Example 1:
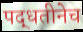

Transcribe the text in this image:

पद्धतीनेच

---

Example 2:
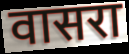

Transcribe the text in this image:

वासरा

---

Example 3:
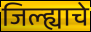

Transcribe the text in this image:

जिल्ह्याचे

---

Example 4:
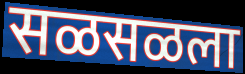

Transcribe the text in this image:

सळसळला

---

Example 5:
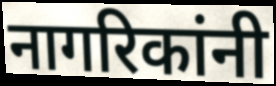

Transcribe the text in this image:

नागरिकांनी